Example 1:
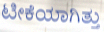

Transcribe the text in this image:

ಟೀಕೆಯಾಗಿತ್ತು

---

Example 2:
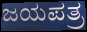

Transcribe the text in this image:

ಜಯಪತ್ರ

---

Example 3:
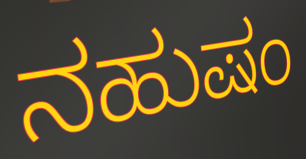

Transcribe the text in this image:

ನಹುಷಂ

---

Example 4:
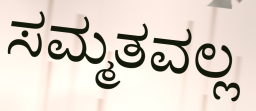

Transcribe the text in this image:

ಸಮ್ಮತವಲ್ಲ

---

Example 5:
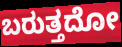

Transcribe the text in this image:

ಬರುತ್ತದೋ